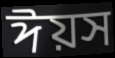
ঈয়স